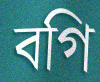
বগি